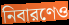
নিবারণেও